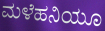
ಮಳೆಹನಿಯೂ